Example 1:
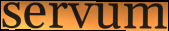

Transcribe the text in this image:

servum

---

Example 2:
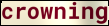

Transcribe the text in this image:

crowning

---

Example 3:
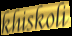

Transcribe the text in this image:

khiskoli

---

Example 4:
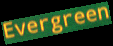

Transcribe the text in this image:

Evergreen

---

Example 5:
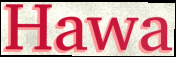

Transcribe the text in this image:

Hawa